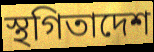
স্থগিতাদেশ